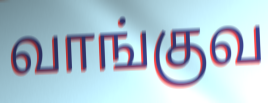
வாங்குவ